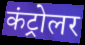
कंट्रोलर